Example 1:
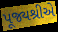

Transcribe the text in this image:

પૂજ્યશ્રીએ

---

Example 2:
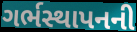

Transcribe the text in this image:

ગર્ભસ્થાપનની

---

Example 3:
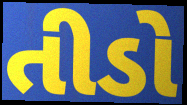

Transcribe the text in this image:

તીડો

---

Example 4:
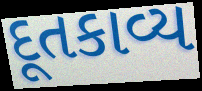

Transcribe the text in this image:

દૂતકાવ્ય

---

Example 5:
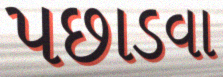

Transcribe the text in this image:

પછાડવા